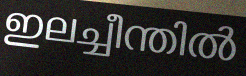
ഇലച്ചീന്തിൽ